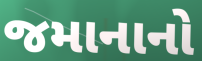
જમાનાનો